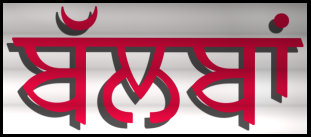
ਬੱਲਬਾਂ